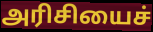
அரிசியைச்